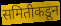
समितीकडून